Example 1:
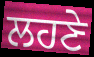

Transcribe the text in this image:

ਲਹਣੇ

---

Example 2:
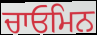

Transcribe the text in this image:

ਚਾਓਮਿਨ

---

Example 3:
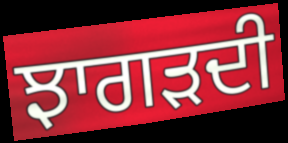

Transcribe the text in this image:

ਝਾਗੜਦੀ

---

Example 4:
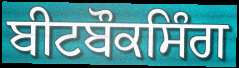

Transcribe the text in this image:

ਬੀਟਬੌਕਸਿੰਗ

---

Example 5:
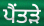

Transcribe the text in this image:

ਪੈਂਤੜੇ